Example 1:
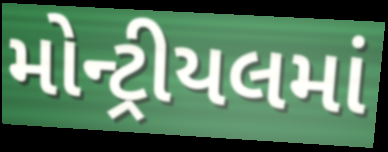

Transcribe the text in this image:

મોન્ટ્રીયલમાં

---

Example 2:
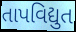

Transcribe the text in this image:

તાપવિદ્યુત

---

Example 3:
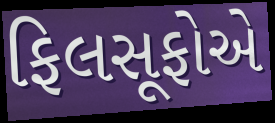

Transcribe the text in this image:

ફિલસૂફોએ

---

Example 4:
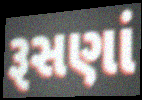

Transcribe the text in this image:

રૂસણાં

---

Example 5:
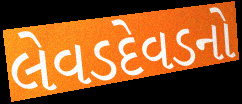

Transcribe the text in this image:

લેવડદેવડનો